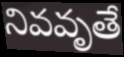
నివవృతే